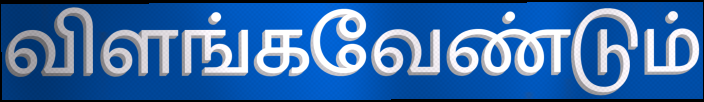
விளங்கவேண்டும்